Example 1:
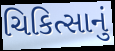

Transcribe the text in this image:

ચિકિત્સાનું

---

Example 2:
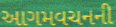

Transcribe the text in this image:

આગમવચનની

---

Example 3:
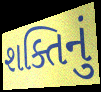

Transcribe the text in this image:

શક્તિનું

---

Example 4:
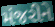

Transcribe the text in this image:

મંજરીને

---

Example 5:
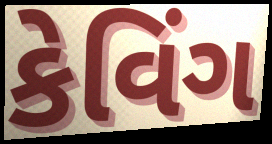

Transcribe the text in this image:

કેવિંગ